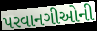
પરવાનગીઓની